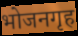
भोजनगृह